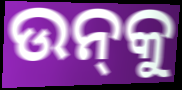
ଉନ୍‌କୁ